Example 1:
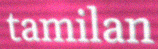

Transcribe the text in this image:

tamilan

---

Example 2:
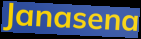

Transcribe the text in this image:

Janasena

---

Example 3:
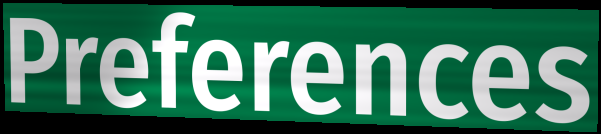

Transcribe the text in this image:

Preferences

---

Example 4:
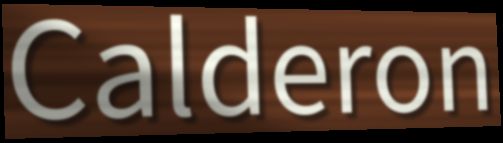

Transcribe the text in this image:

Calderon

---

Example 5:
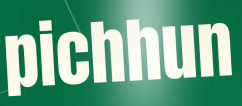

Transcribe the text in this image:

pichhun